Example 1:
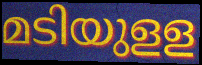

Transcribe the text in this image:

മടിയുളള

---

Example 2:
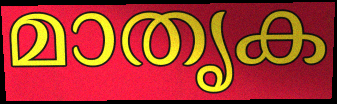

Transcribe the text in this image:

മാതൃക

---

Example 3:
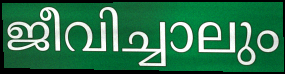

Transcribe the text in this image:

ജീവിച്ചാലും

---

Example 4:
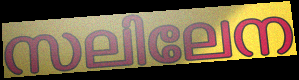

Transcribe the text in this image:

സലിലേന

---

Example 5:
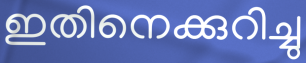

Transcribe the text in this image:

ഇതിനെക്കുറിച്ചു